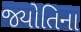
જ્યોતિના